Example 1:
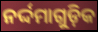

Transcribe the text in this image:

ନର୍ଦ୍ଦମାଗୁଡ଼ିକ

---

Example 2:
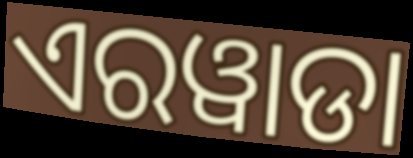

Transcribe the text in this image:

ଏରୱାଡା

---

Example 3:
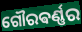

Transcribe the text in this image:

ଗୌରଵର୍ଣ୍ଣର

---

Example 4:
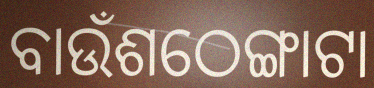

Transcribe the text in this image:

ବାଉଁଶଠେଙ୍ଗାଟା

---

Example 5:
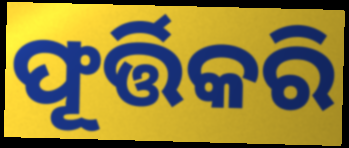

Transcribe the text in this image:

ଫୂର୍ତ୍ତିକରି